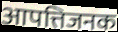
आपत्तिजनक